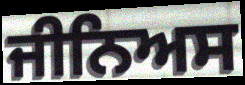
ਜੀਨਿਅਸ